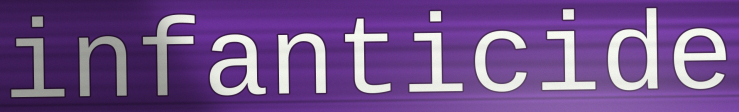
infanticide